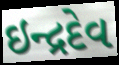
ઇન્દ્રદેવ